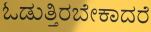
ಓಡುತ್ತಿರಬೇಕಾದರೆ